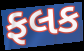
ફલક